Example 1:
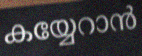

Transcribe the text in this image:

കയ്യേറാൻ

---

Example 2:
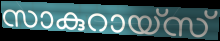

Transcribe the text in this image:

സാകുറായ്സ്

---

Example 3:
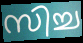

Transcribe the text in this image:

സിച്ച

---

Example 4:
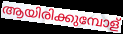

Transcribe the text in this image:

ആയിരിക്കുമ്പോള്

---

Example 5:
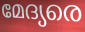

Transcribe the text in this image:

മേദ്യരെ